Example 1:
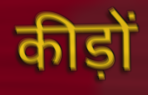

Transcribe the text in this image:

कीड़ों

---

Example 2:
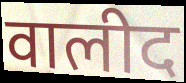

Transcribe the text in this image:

वालीद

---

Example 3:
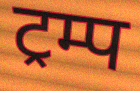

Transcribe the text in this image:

ट्रम्‍प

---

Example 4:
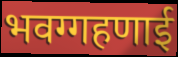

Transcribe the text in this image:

भवग्गहणाई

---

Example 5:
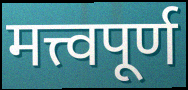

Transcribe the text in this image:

मत्त्वपूर्ण